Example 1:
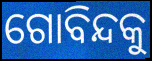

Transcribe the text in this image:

ଗୋବିନ୍ଦକୁ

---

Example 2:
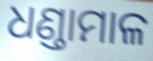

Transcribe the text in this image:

ଧଣ୍ଡାମାଳ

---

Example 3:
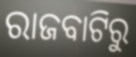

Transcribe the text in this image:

ରାଜବାଟିରୁ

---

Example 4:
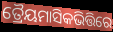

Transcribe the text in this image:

ତ୍ରୈୟମାସିକଭିତ୍ତିରେ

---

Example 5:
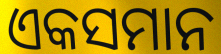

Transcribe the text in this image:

ଏକସମାନ